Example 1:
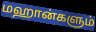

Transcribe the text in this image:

மஹான்களும்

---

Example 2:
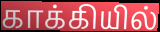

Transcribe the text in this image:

காக்கியில்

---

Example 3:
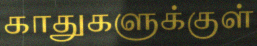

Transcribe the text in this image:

காதுகளுக்குள்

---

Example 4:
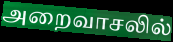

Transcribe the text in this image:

அறைவாசலில்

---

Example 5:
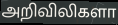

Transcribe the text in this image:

அறிவிலிகளா